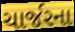
ચાર્જરના